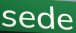
sede